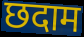
छदाम